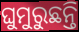
ଘୁମୁରୁଛନ୍ତି